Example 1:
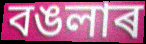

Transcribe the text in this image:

বঙলাৰ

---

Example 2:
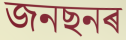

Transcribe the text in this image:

জনছনৰ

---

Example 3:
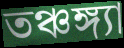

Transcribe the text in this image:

তঞ্চঙ্গ্যা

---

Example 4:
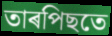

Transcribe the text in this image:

তাৰপিছতে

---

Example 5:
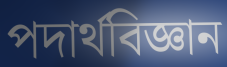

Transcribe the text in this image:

পদাৰ্থবিজ্ঞান